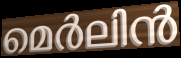
മെർലിൻ